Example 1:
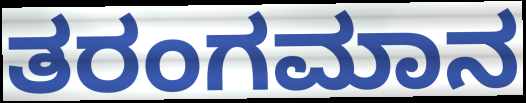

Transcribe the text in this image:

ತರಂಗಮಾನ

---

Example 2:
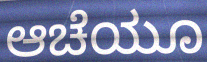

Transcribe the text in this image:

ಆಚೆಯೂ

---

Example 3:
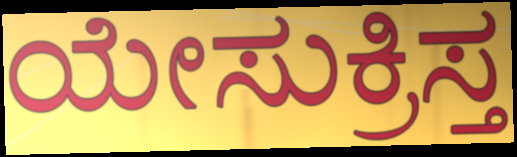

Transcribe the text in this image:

ಯೇಸುಕ್ರಿಸ್ತ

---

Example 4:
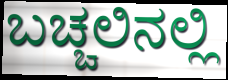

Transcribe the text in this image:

ಬಚ್ಚಲಿನಲ್ಲಿ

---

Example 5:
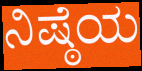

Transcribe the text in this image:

ನಿಷ್ಠೆಯ